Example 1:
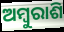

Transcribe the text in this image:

ଅମ୍ୱୁରାଶି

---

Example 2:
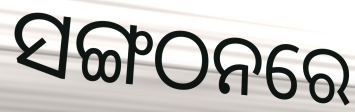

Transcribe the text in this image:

ସଙ୍ଗଠନରେ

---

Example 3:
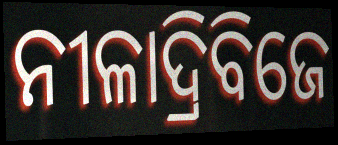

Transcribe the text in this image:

ନୀଳାଦ୍ରିବିଜେ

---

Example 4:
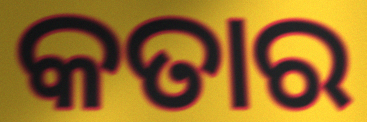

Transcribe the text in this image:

କତାର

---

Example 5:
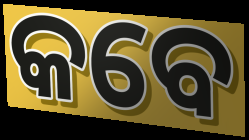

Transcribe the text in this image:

କବେ